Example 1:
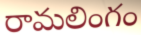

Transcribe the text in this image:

రామలింగం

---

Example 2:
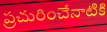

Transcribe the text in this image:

ప్రచురించేనాటికి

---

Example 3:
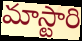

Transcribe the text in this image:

మాస్టారి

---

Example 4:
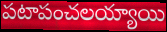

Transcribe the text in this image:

పటాపంచలయ్యాయి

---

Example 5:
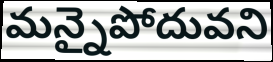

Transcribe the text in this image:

మన్నైపోదువని